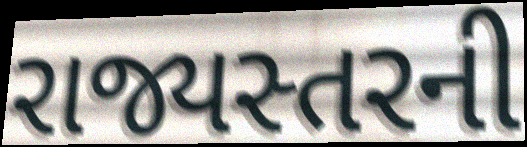
રાજ્યસ્તરની